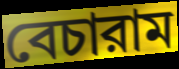
বেচারাম